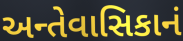
અન્તેવાસિકાનં